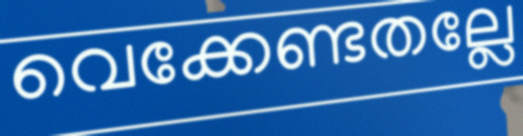
വെക്കേണ്ടതല്ലേ